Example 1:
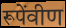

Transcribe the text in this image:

रूपेंवीण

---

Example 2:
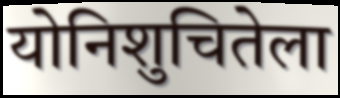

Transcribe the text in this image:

योनिशुचितेला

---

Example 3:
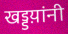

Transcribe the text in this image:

खड्डय़ांनी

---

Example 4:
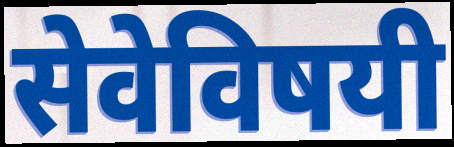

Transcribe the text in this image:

सेवेविषयी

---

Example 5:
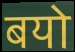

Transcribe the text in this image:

बयो